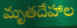
మృతదేహాల